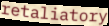
retaliatory